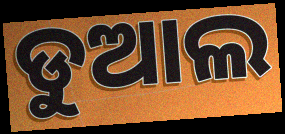
ଡୁଆଲ